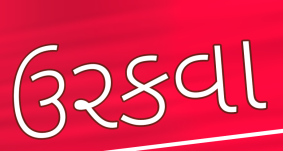
ઉરકવા